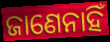
ଜାଣେନାହିଁ